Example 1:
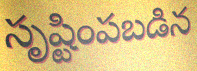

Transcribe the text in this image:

సృష్టింపబడిన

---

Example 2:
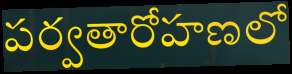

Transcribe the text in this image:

పర్వతారోహణలో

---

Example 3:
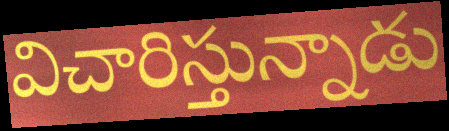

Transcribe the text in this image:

విచారిస్తున్నాడు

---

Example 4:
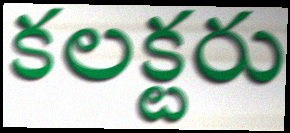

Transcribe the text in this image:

కలక్టరు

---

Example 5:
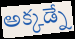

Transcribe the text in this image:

అక్కడ్నే